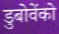
डुबोवेंको